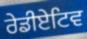
ਰੇਡੀਏਟਿਵ